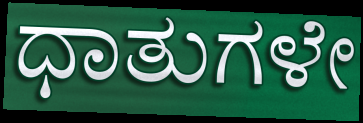
ಧಾತುಗಳೇ